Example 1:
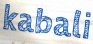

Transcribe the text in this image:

kabali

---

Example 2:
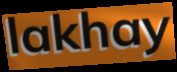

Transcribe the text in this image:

lakhay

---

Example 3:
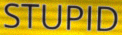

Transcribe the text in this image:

STUPID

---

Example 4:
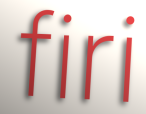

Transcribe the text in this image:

firi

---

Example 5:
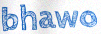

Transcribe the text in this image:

bhawo